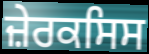
ਜ਼ੇਰਕਸਿਸ